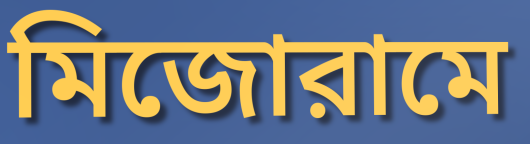
মিজোরামে